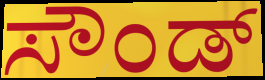
ಸೌಂಡ್